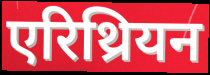
एरिथ्रियन